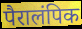
पैरालंपिक